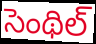
సెంథిల్